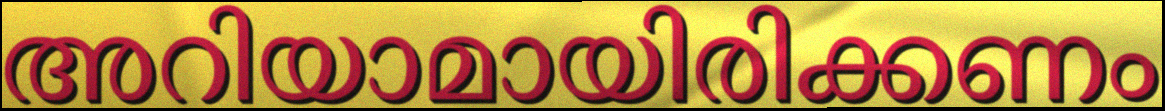
അറിയാമായിരിക്കണം